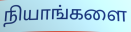
நியாங்களை